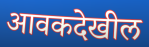
आवकदेखील